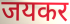
जयकर